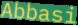
Abbasi